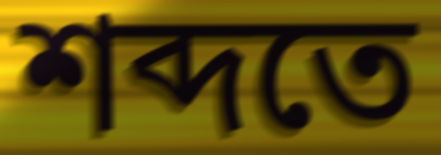
শব্দতে